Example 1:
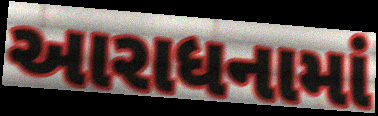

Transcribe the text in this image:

આરાધનામાં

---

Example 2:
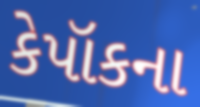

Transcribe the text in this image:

કેપૉકના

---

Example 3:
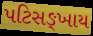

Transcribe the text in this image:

પટિસઙ્ખાય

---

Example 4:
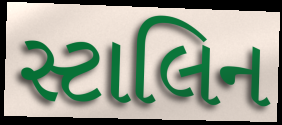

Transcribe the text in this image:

સ્ટાલિન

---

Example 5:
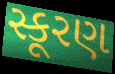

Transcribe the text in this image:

સ્કૂરણ